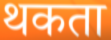
थकता